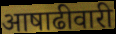
आषाढीवारी